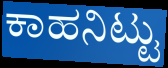
ಕಾಹನಿಟ್ಟು